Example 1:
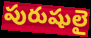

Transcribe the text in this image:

పురుషులై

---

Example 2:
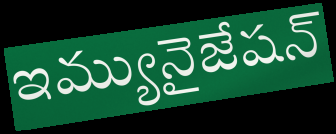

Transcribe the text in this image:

ఇమ్యునైజేషన్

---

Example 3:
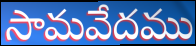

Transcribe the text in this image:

సామవేదము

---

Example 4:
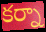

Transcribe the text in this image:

కర్నా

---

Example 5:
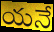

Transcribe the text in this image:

యనే